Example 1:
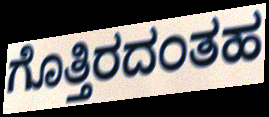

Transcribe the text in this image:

ಗೊತ್ತಿರದಂತಹ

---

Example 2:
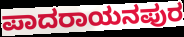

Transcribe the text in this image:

ಪಾದರಾಯನಪುರ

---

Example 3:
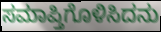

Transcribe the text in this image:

ಸಮಾಪ್ತಿಗೊಳಿಸಿದನು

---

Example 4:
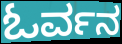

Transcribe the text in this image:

ಓರ್ವನ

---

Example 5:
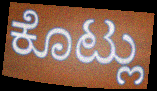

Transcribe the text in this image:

ಕೊಟ್ಲು